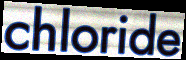
chloride